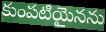
కుంపటియైనను